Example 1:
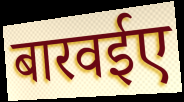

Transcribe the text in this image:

बारवईए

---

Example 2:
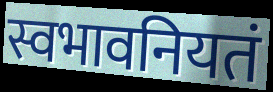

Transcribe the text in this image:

स्वभावनियतं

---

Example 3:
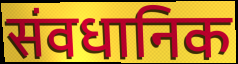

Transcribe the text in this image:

संवधानिक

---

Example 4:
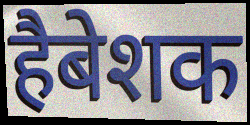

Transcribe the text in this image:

हैबेशक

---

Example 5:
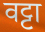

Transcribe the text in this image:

वट्टा